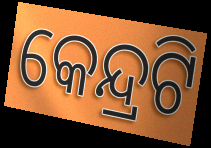
କେନ୍ଦ୍ରଟି